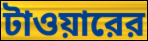
টাওয়ারের